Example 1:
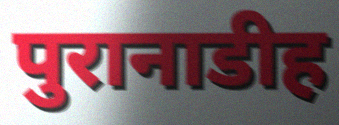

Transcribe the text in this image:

पुरानाडीह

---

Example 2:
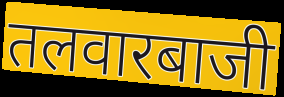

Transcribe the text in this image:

तलवारबाजी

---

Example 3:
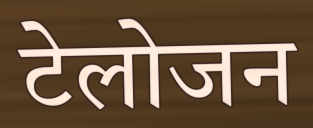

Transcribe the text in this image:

टेलोजन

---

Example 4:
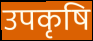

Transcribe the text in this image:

उपकृषि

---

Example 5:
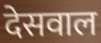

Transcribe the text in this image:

देसवाल